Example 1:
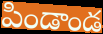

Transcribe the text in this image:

పిండాండ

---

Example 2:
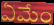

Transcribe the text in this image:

ఏమేం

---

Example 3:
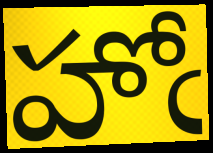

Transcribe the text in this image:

హోఁ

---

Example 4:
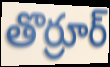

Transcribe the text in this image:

తొర్రూర్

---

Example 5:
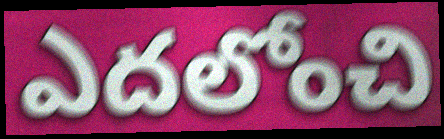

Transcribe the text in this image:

ఎదలోంచి